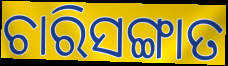
ଚାରିସଙ୍ଗାତ